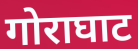
गोराघाट